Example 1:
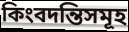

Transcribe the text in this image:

কিংবদন্তিসমূহ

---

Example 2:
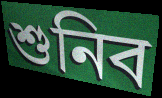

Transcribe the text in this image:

শুনিব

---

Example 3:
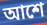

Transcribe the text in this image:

আশে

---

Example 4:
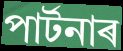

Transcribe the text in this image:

পাৰ্টনাৰ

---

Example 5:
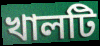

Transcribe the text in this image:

খালটি